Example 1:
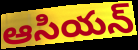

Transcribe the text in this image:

ఆసియన్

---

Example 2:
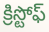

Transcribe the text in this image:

క్రిస్టోఫ్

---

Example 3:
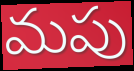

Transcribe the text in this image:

మపు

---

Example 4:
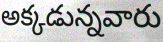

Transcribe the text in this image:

అక్కడున్నవారు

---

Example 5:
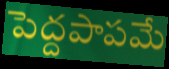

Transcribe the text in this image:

పెద్దపాపమే